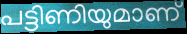
പട്ടിണിയുമാണ്